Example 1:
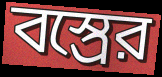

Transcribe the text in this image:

বস্ত্রের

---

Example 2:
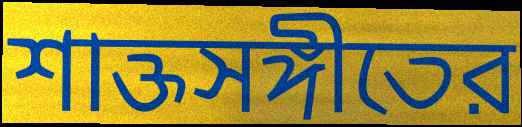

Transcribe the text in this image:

শাক্তসঙ্গীতের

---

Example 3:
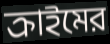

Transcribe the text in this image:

ক্রাইমের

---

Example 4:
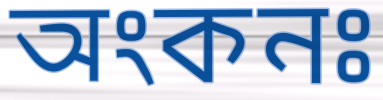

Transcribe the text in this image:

অংকনঃ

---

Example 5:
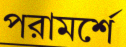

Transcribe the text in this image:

পরামর্শে